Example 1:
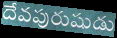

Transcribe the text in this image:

దేవపురుషుడు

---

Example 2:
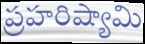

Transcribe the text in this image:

ప్రహరిష్యామి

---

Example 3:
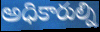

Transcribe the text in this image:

అధికారుల్ని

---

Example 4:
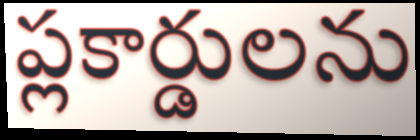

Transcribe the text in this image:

ప్లకార్డులను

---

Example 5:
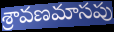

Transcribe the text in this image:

శ్రావణమాసపు